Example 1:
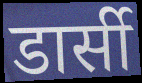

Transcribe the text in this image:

डार्सी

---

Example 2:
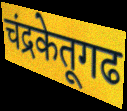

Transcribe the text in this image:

चंद्रकेतूगढ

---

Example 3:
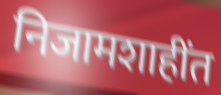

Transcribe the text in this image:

निजामशाहींत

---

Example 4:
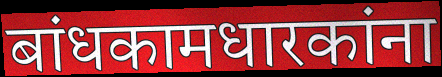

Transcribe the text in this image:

बांधकामधारकांना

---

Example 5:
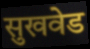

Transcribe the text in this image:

सुखवेड